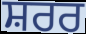
ਸ਼ਰਰ